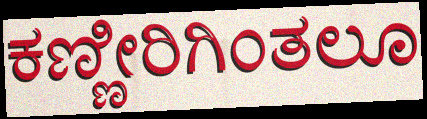
ಕಣ್ಣೀರಿಗಿಂತಲೂ